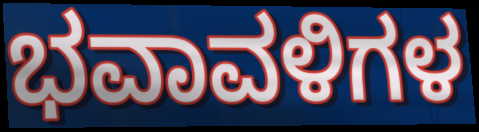
ಭವಾವಳಿಗಳ